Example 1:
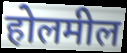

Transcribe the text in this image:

होलमील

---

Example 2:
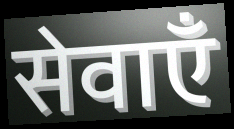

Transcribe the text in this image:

सेवाएँ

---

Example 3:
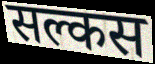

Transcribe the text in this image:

सल्कस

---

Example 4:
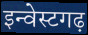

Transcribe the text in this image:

इन्वेस्टगढ़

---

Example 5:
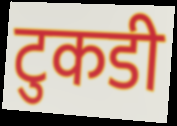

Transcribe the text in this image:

टुकडी